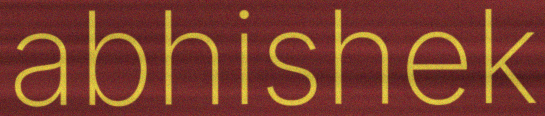
abhishek